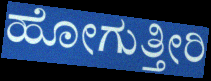
ಹೋಗುತ್ತೀರಿ